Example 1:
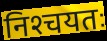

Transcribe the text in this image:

निश्चयतः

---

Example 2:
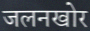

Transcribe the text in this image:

जलनखोर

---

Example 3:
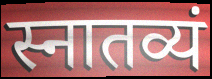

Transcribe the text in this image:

स्नातव्यं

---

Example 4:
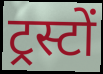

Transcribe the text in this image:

ट्रस्टों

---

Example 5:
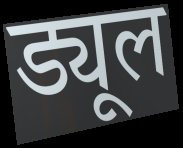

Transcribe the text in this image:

ड्यूल